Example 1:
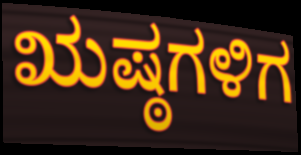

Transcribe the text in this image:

ಋಷ್ಠಗಳಿಗ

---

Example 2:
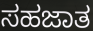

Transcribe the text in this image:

ಸಹಜಾತ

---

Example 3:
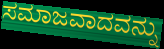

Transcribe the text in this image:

ಸಮಾಜವಾದವನ್ನು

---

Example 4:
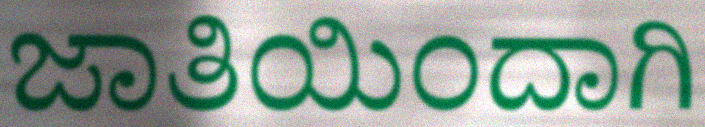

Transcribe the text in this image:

ಜಾತಿಯಿಂದಾಗಿ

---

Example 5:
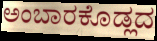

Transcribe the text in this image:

ಅಂಬಾರಕೊಡ್ಲದ